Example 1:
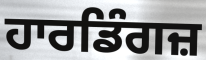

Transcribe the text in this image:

ਹਾਰਡਿੰਗਜ਼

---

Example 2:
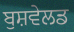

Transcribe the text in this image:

ਬੁਸ਼ਵੇਲਡ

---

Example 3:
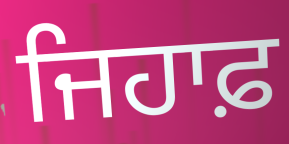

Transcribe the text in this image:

ਜਿਹਾਫ਼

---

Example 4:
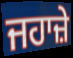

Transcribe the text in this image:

ਜਹਾਜ਼ੇ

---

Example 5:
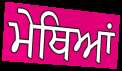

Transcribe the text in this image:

ਮੇਥਿਆਂ